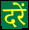
दरें